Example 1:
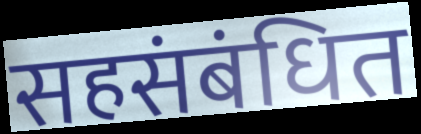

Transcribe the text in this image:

सहसंबंधित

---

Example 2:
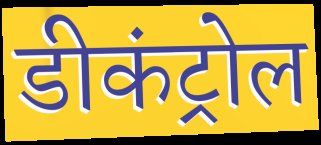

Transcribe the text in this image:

डीकंट्रोल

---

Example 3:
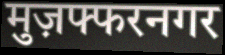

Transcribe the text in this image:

मुज़फ्फरनगर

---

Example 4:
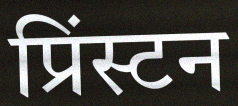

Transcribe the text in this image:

प्रिंस्टन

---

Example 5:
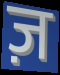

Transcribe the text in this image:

ज़